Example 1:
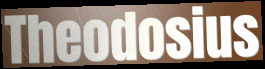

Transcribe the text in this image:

Theodosius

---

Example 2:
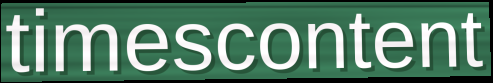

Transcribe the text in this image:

timescontent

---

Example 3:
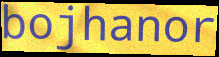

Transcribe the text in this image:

bojhanor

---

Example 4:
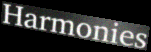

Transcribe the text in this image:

Harmonies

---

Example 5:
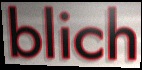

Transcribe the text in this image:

blich